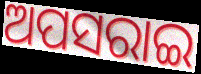
ଅପସରାଇ